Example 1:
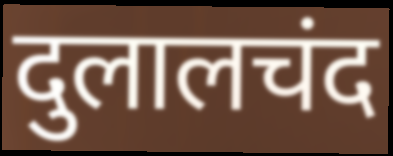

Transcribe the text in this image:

दुलालचंद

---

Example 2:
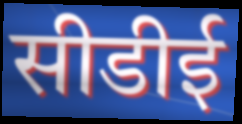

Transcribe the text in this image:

सीडीई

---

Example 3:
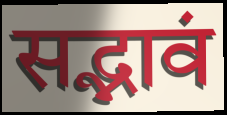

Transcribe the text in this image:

सद्भावं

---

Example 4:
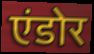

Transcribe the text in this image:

एंडोर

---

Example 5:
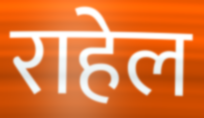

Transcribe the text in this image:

राहेल